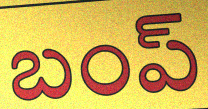
బంప్